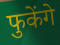
फुकेंगे